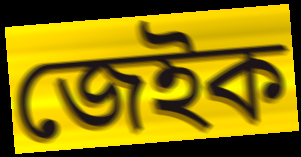
জেইক